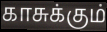
காசுக்கும்